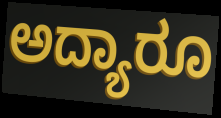
ಅದ್ಯಾರೂ